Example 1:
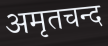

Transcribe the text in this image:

अमृतचन्द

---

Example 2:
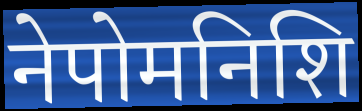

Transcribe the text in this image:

नेपोमनिशि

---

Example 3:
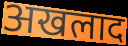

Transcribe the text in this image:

अखलाद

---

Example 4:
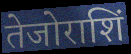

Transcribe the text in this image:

तेजोराशिं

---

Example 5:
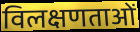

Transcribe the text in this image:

विलक्षणताओं